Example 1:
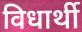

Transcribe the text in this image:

विधार्थी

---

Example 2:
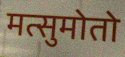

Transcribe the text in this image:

मत्सुमोतो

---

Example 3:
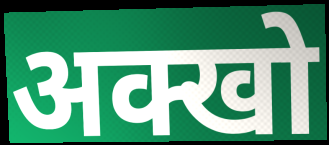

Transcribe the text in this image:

अक्खो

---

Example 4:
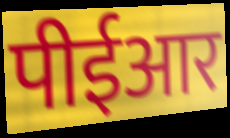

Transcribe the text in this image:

पीईआर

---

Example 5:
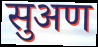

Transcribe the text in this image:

सुअण